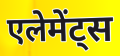
एलेमेंट्स